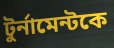
টুর্নামেন্টকে